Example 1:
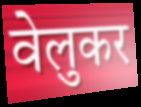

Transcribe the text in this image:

वेलुकर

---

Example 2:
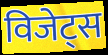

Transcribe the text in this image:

विजेट्स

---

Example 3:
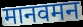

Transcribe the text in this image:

मानवमन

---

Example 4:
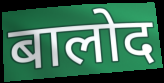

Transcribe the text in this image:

बालोद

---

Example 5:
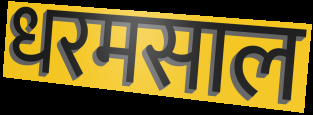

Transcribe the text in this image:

धरमसाल